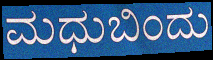
ಮಧುಬಿಂದು